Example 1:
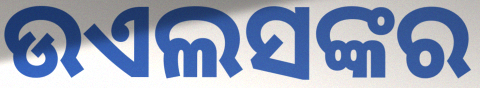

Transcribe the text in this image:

ଉଏଲସଙ୍କର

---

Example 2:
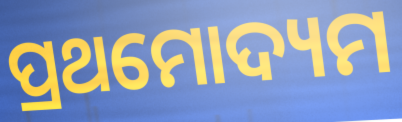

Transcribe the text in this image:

ପ୍ରଥମୋଦ୍ୟମ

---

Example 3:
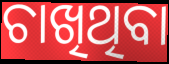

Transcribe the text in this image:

ଚାଖିଥିବା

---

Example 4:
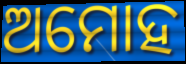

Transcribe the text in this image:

ଅମୋହ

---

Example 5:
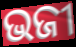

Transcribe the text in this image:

ଭଜୀ